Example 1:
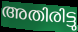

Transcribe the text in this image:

അതിരിട്ടു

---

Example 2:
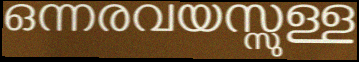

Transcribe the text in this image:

ഒന്നരവയസ്സുള്ള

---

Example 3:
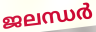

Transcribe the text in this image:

ജലന്ധർ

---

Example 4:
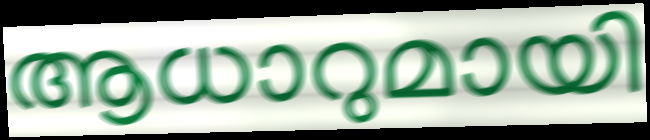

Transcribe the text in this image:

ആധാറുമായി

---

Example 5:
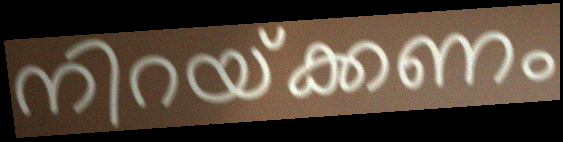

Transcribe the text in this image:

നിറയ്‌ക്കണം